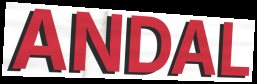
ANDAL